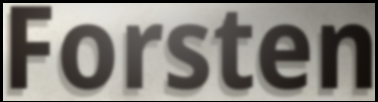
Forsten